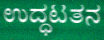
ಉದ್ಧಟತನ